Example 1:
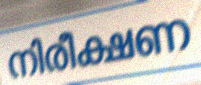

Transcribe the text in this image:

നിരീക്ഷണ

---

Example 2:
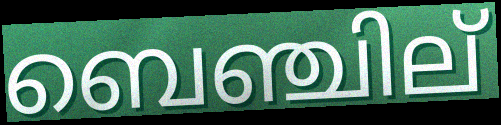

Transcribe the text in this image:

ബെഞ്ചില്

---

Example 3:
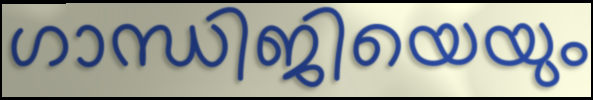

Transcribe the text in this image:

ഗാന്ധിജിയെയും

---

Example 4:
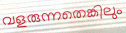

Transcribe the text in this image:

വളരുന്നതെങ്കിലും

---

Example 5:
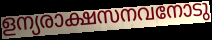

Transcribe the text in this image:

ളന്യരാക്ഷസനവനോടു